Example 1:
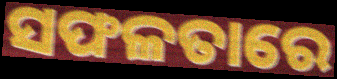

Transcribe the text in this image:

ସଫଳତାରେ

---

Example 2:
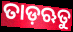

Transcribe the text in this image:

ତାଡ଼ଋତୁ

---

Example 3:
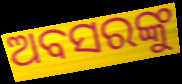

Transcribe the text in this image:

ଅବସରଙ୍କୁ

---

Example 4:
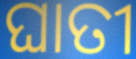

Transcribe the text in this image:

ଘାତୀ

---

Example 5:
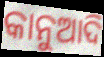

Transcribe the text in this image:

କାନୁଆଦି